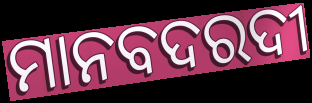
ମାନବଦରଦୀ